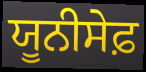
ਯੂਨੀਸੇਫ਼